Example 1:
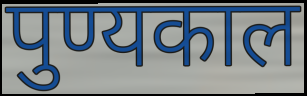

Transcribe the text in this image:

पुण्यकाल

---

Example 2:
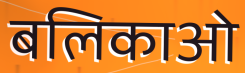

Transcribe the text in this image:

बलिकाओ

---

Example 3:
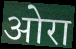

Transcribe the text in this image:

ओरा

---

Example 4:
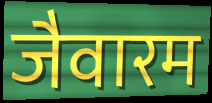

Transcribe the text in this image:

जैवारम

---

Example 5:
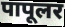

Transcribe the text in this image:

पापूलर